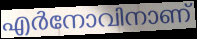
എർനോവിനാണ്